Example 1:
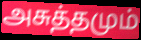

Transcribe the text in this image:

அசுத்தமும்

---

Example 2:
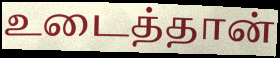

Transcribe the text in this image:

உடைத்தான்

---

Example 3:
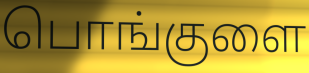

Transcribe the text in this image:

பொங்குளை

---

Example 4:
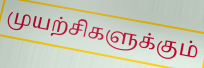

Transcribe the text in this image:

முயற்சிகளுக்கும்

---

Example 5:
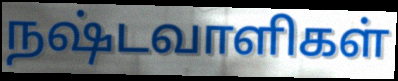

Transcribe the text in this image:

நஷ்டவாளிகள்